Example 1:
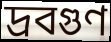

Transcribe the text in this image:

দ্রবগুণ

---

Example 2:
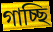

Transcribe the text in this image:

গাচ্ছি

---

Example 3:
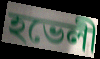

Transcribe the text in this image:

হভেলী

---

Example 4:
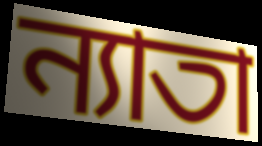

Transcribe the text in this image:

ন্যাতা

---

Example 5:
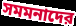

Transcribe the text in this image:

সমমনাদের